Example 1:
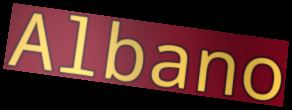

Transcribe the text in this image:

Albano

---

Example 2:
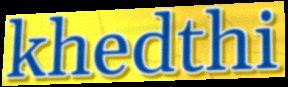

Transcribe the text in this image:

khedthi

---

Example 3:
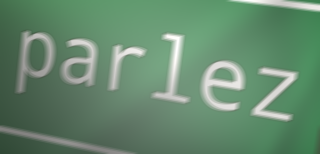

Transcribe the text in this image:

parlez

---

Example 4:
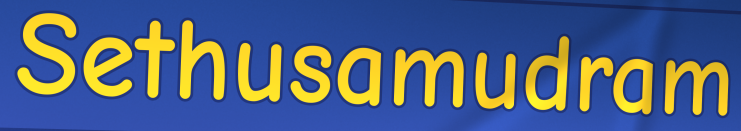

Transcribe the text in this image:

Sethusamudram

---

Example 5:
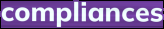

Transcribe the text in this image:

compliances